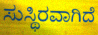
ಸುಸ್ಥಿರವಾಗಿದೆ